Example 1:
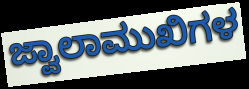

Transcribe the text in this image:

ಜ್ವಾಲಾಮುಖಿಗಳ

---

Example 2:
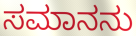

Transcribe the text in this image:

ಸಮಾನನು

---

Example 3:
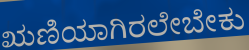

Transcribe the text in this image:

ಋಣಿಯಾಗಿರಲೇಬೇಕು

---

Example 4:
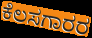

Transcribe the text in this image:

ಕೆಲಸಗಾರರ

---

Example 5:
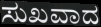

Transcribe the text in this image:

ಸುಖವಾದ